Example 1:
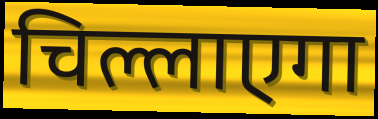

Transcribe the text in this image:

चिल्लाएगा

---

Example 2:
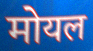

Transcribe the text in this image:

मोयल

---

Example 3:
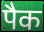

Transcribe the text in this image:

पैक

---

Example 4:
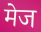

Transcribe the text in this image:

मेज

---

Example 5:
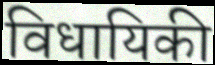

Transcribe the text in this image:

विधायिकी